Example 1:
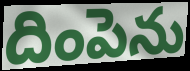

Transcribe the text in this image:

దింపెను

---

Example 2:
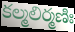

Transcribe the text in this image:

కల్మలిర్మణిః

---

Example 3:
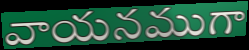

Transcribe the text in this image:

వాయనముగా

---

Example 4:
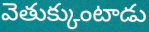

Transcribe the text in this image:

వెతుక్కుంటాడు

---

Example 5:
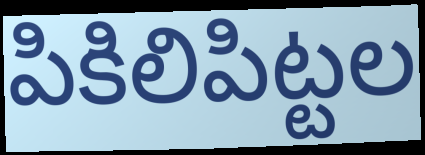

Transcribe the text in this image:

పికిలిపిట్టల